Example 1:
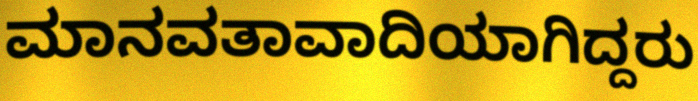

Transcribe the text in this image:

ಮಾನವತಾವಾದಿಯಾಗಿದ್ದರು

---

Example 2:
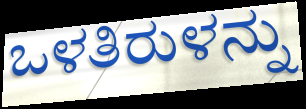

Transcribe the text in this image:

ಒಳತಿರುಳನ್ನು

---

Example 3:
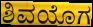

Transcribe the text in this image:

ಶಿವಯೊಗ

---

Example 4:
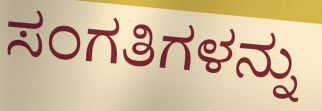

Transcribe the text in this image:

ಸಂಗತಿಗಳನ್ನು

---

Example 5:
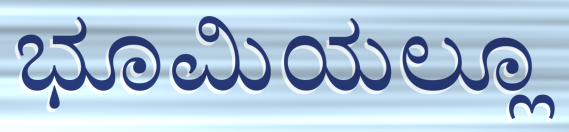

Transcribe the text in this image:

ಭೂಮಿಯಲ್ಲೂ